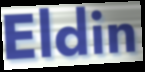
Eldin